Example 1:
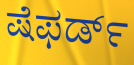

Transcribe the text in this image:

ಷೆಫರ್ಡ್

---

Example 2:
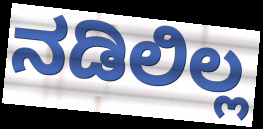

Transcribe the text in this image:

ನಡಿಲಿಲ್ಲ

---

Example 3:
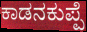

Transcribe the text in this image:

ಕಾಡನಕುಪ್ಪೆ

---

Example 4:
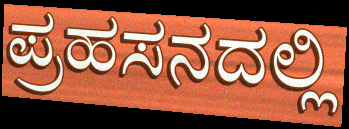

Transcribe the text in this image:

ಪ್ರಹಸನದಲ್ಲಿ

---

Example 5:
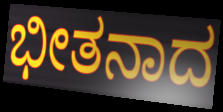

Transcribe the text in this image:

ಭೀತನಾದ